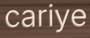
cariye